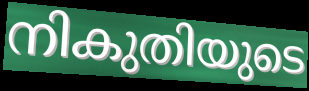
നികുതിയുടെ